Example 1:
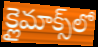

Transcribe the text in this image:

క్లైమాక్స్‌లో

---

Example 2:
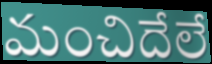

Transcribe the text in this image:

మంచిదేలే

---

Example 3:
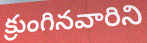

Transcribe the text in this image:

క్రుంగినవారిని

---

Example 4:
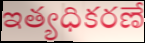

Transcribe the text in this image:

ఇత్యధికరణే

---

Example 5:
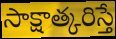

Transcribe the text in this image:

సాక్షాత్కరిస్తే